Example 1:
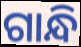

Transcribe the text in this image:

ଗାନ୍ଧି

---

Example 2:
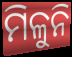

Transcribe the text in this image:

ମିଳୁନି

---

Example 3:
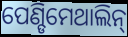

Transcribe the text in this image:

ପେଣ୍ଡିମେଥାଲିନ୍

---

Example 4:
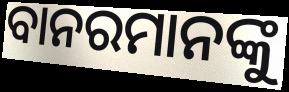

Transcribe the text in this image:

ବାନରମାନଙ୍କୁ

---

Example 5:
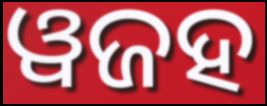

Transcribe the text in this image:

ୱଜହ